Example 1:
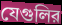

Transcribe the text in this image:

যেগুলির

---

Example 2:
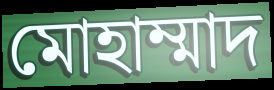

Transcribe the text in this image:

মোহাম্মাদ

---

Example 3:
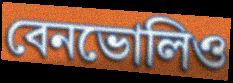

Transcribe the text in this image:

বেনভোলিও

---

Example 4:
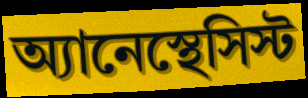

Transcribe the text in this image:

অ্যানেস্থেসিস্ট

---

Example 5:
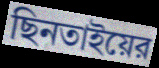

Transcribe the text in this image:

ছিনতাইয়ের